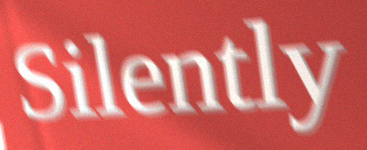
Silently